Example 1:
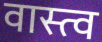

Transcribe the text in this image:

वास्त्व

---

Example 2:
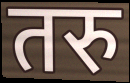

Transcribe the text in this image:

तरु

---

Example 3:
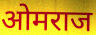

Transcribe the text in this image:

ओमराज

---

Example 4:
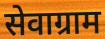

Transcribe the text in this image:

सेवाग्राम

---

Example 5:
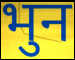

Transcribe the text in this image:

भुन